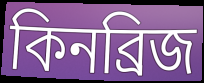
কিনব্রিজ